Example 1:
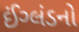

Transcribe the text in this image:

ઈંગ્લંડનો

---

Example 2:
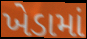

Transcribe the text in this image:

ખેડામાં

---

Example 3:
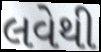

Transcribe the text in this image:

લવેથી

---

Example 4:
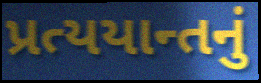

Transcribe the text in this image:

પ્રત્યયાન્તનું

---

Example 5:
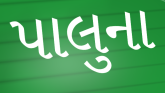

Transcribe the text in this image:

પાલુના